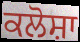
ਕਲੋਸ਼ਾ